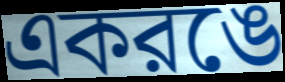
একরঙে